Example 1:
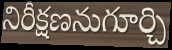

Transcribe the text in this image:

నిరీక్షణనుగూర్చి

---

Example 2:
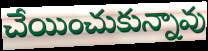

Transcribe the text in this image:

చేయించుకున్నావు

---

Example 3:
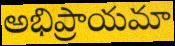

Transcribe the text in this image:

అభిప్రాయమా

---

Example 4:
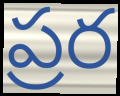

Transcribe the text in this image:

ప్రర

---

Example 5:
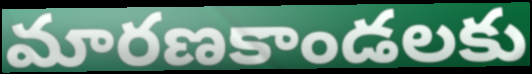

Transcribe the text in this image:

మారణకాండలకు